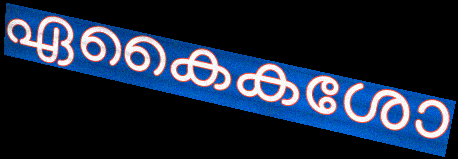
ഏകൈകശോ